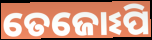
ତେଜୋଽପି